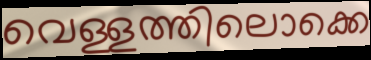
വെള്ളത്തിലൊക്കെ